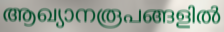
ആഖ്യാനരൂപങ്ങളിൽ